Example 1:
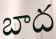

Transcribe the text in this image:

బాద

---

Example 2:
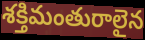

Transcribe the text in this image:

శక్తిమంతురాలైన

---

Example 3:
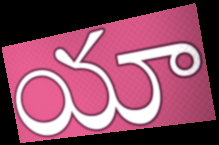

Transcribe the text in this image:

యా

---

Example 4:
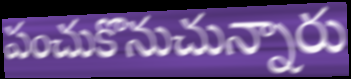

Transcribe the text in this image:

పంచుకొనుచున్నారు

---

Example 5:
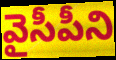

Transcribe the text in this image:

వైసీపీని